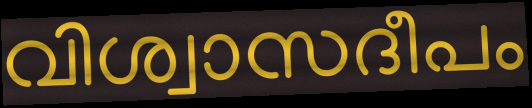
വിശ്വാസദീപം